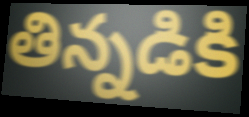
తిన్నడికి